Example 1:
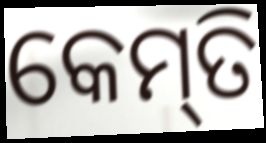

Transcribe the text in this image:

କେମ୍‍ତି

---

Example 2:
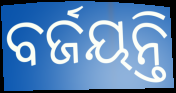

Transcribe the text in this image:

ବର୍ଜୟନ୍ତି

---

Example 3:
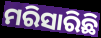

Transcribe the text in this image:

ମରିସାରିଛି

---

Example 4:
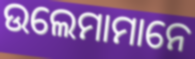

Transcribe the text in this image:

ଉଲେମାମାନେ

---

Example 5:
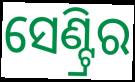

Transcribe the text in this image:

ସେଣ୍ଟ୍ରିର